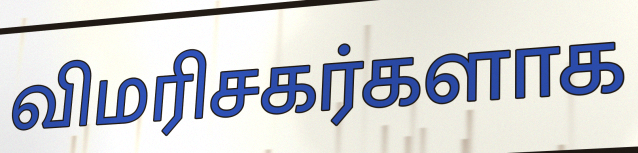
விமரிசகர்களாக